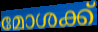
മോശക്ക്